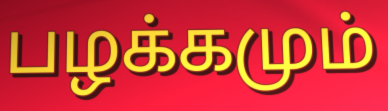
பழக்கமும்